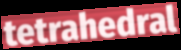
tetrahedral